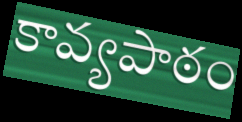
కావ్యపాఠం